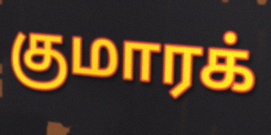
குமாரக்